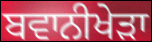
ਬਵਾਨੀਖੇੜਾ